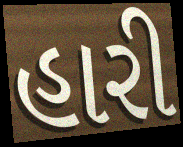
હારી